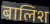
बालिश